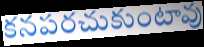
కనపరచుకుంటావు